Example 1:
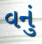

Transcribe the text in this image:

વનું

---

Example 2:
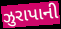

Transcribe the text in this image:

ઝુરાપાની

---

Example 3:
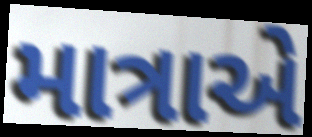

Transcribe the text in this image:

માત્રાએ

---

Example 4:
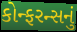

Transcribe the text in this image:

કોન્ફરન્સનું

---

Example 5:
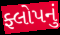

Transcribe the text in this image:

ફ્લોપનું